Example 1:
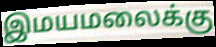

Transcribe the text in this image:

இமயமலைக்கு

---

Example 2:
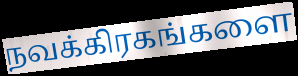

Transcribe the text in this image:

நவக்கிரகங்களை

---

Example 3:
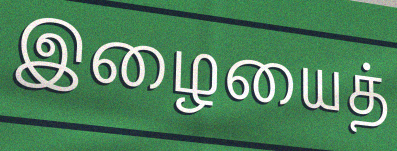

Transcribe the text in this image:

இழையைத்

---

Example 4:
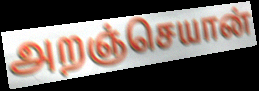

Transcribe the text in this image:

அறஞ்செயான்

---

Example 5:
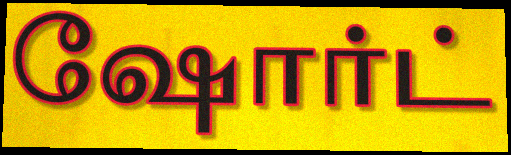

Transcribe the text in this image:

ஷோர்ட்